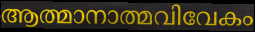
ആത്മാനാത്മവിവേകം